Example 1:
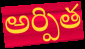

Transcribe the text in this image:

అర్పిత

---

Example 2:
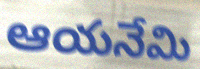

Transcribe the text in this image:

ఆయనేమి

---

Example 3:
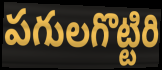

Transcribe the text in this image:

పగులగొట్టిరి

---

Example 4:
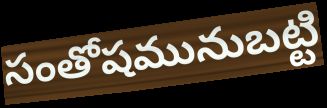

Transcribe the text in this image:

సంతోషమునుబట్టి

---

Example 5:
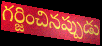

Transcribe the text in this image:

గర్జించినప్పుడు